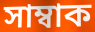
সাম্বাক